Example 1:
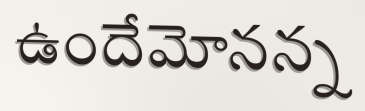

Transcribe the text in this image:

ఉందేమోనన్న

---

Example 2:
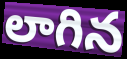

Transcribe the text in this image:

లాగిన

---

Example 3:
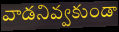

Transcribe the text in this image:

వాడనివ్వకుండా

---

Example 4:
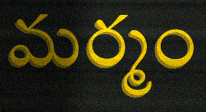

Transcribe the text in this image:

మర్మం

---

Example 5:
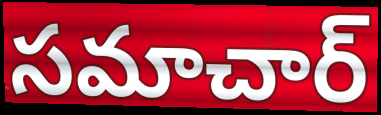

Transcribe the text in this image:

సమాచార్